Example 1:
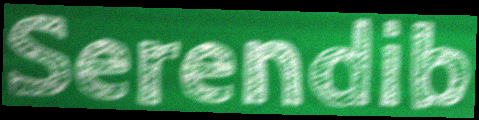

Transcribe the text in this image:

Serendib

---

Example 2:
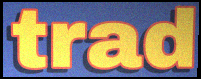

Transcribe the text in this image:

trad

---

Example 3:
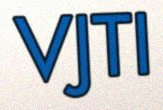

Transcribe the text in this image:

VJTI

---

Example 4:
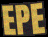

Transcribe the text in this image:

EPE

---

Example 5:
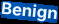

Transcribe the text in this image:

Benign